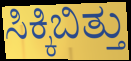
ಸಿಕ್ಕಿಬಿತ್ತು